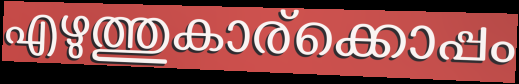
എഴുത്തുകാര്ക്കൊപ്പം